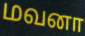
மவனா